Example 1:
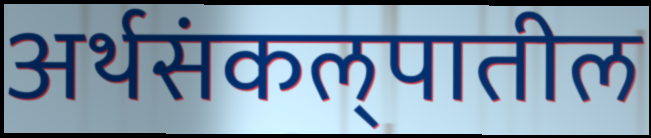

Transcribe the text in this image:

अर्थसंकल्पातील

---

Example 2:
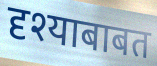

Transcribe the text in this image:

दृश्याबाबत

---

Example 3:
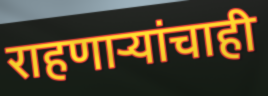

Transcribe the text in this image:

राहणाऱ्यांचाही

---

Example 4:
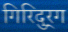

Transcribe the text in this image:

गिरिदुर्ग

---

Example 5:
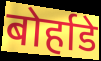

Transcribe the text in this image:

बोर्हाडे